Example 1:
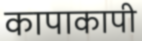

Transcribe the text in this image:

कापाकापी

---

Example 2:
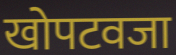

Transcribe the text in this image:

खोपटवजा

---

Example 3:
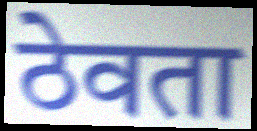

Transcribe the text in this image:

ठेवता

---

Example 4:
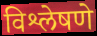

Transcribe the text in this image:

विश्लेषणे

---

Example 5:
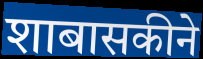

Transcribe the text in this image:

शाबासकीने